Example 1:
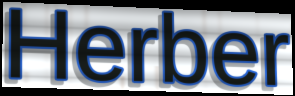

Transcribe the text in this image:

Herber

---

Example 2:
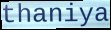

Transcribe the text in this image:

thaniya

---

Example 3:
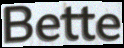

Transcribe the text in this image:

Bette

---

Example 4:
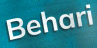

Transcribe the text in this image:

Behari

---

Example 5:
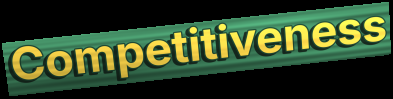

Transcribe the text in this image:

Competitiveness